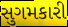
સુગમકારી